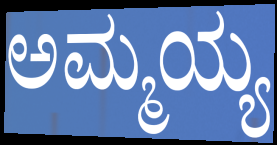
ಅಮ್ಮಯ್ಯ